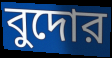
বুদোর